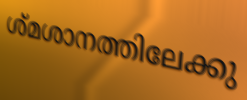
ശ്മശാനത്തിലേക്കു